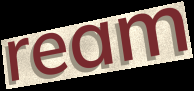
ream